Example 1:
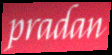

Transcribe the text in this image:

pradan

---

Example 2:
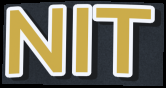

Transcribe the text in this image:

NIT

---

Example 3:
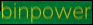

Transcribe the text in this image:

binpower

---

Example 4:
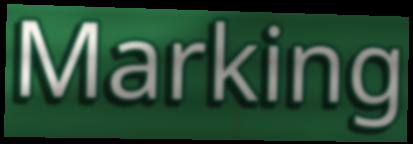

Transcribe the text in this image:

Marking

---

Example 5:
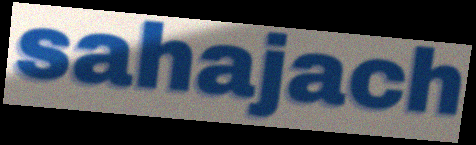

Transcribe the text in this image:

sahajach